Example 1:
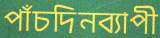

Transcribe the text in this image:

পাঁচদিনব্যাপী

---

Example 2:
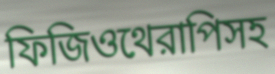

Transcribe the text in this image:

ফিজিওথেরাপিসহ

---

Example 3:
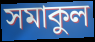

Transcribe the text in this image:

সমাকুল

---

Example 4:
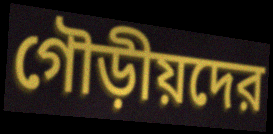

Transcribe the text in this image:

গৌড়ীয়দের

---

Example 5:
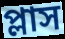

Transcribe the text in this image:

প্লাস